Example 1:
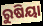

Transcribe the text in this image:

ରୁଷିୟା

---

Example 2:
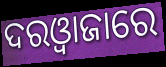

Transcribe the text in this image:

ଦରଓ୍ୱାଜାରେ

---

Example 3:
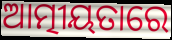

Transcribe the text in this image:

ଆତ୍ମୀୟତାରେ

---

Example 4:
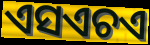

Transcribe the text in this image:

ଏସଏଚଏ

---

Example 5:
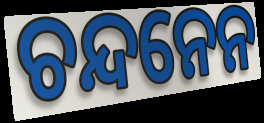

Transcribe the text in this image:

ଚନ୍ଦନେନ